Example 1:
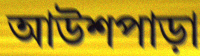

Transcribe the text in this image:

আউশপাড়া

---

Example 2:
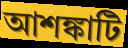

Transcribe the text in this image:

আশঙ্কাটি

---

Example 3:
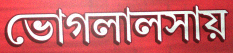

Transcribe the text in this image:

ভোগলালসায়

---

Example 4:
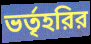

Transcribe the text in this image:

ভর্তৃহরির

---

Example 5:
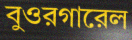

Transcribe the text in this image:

বুওরগারেল